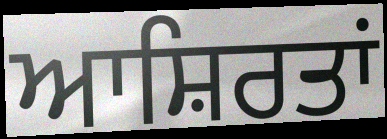
ਆਸ਼ਿਰਤਾਂ